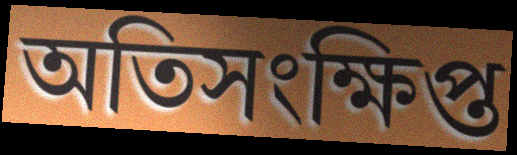
অতিসংক্ষিপ্ত